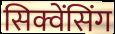
सिक्वेंसिंग